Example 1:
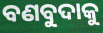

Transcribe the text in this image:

ବଣବୁଦାକୁ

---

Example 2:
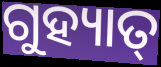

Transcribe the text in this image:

ଗୁହ୍ୟାତ୍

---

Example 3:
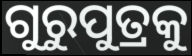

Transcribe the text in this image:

ଗୁରୁପୁତ୍ରକୁ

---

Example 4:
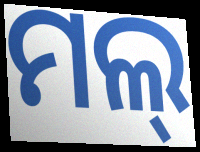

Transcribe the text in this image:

ମଲ୍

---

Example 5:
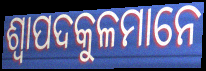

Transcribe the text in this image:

ଶ୍ୱାପଦକୁଳମାନେ